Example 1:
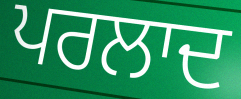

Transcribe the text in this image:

ਪਰਲਾਦ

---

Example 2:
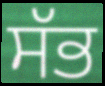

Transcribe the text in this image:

ਸੱਭ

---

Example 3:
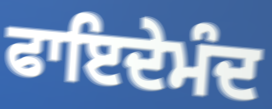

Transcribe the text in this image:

ਫਾਇਦੇਮੰਦ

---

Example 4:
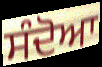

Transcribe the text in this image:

ਸੰਦੋਆ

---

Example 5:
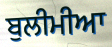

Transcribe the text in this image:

ਬੁਲੀਮੀਆ